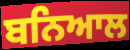
ਬਨਿਆਲ